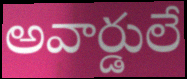
అవార్డులే